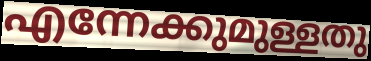
എന്നേക്കുമുള്ളതു